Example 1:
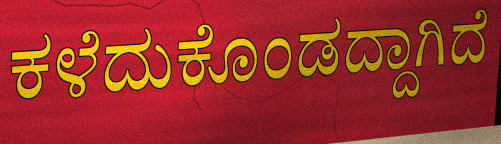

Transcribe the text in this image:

ಕಳೆದುಕೊಂಡದ್ದಾಗಿದೆ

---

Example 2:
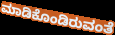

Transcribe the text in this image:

ಮಾಡಿಕೊಂಡಿರುವಂತೆ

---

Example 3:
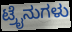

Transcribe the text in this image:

ಟ್ರೈನುಗಳು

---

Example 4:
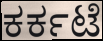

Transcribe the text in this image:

ಕರ್ಕಟೆ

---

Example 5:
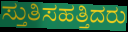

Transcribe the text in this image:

ಸ್ತುತಿಸಹತ್ತಿದರು